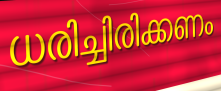
ധരിച്ചിരിക്കണം